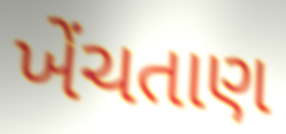
ખેંચતાણ